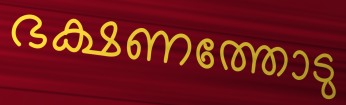
ഭക്ഷണത്തോടു